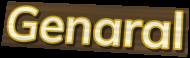
Genaral